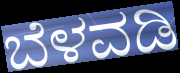
ಬೆಳವಡಿ